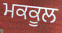
ਮਕਕੂਲ